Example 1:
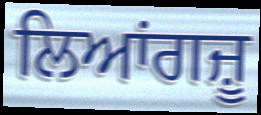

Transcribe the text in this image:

ਲਿਆਂਗਜ਼ੂ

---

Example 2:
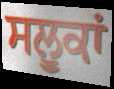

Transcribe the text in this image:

ਸਲੂਕਾਂ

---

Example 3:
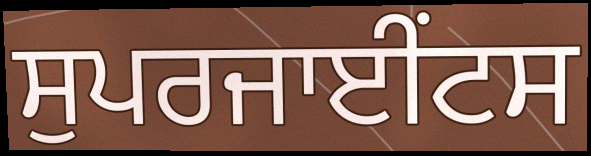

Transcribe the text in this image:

ਸੁਪਰਜਾਈਂਟਸ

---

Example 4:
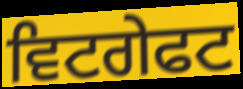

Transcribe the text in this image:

ਵਿਟਗੇਫਟ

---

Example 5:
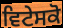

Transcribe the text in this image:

ਵਿਟੇਸਕੋ